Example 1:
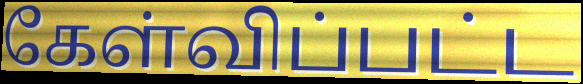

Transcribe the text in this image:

கேள்விப்பட்ட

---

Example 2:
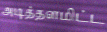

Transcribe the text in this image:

அடித்தளமிட்ட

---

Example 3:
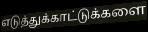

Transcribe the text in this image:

எடுத்துக்காட்டுக்களை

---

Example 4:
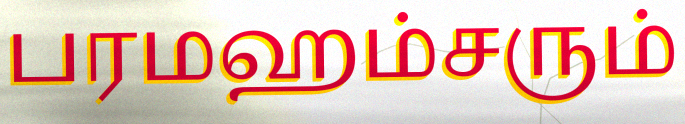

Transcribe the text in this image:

பரமஹம்சரும்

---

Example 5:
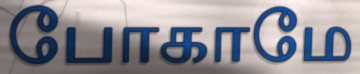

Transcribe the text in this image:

போகாமே